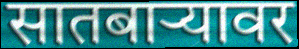
सातबाऱ्यावर